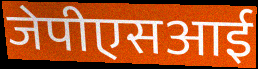
जेपीएसआई